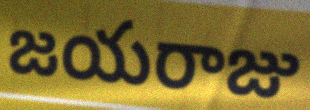
జయరాజు